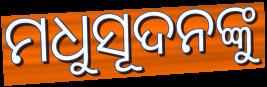
ମଧୁସୂଦନଙ୍କୁ